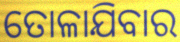
ତୋଳାଯିବାର